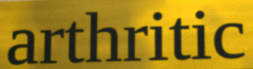
arthritic